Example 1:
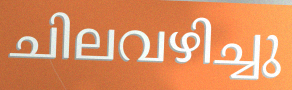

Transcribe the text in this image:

ചിലവഴിച്ചു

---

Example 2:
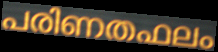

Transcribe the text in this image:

പരിണതഫലം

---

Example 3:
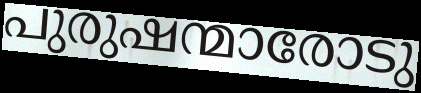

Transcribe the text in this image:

പുരുഷന്മാരോടു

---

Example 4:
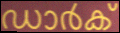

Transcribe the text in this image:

ഡാർക്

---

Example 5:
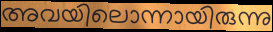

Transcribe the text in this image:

അവയിലൊന്നായിരുന്നു